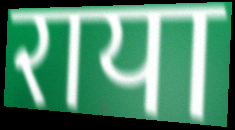
राया